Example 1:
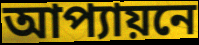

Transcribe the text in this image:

আপ্যায়নে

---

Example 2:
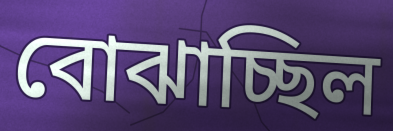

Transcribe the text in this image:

বোঝাচ্ছিল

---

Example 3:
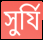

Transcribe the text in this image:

সুর্যি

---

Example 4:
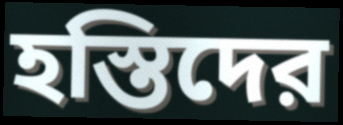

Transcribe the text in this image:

হস্তিদের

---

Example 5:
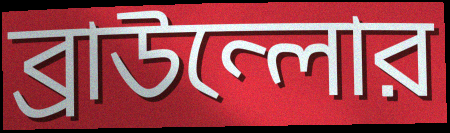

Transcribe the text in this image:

ব্রাউন্লোর